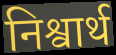
निश्वार्थ